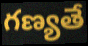
గణ్యతే